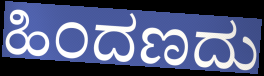
ಹಿಂದಣದು